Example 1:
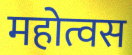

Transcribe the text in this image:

महोत्वस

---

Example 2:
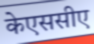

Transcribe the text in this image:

केएससीए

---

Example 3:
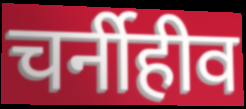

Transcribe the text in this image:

चर्नीहीव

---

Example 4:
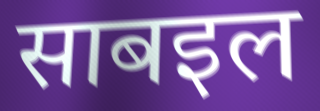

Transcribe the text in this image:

साबइल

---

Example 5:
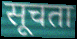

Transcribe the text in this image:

सूचता